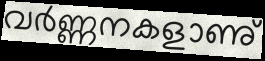
വർണ്ണനകളാണു്